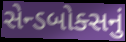
સેન્ડબોક્સનું